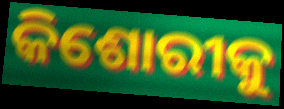
କିଶୋରୀକୁ